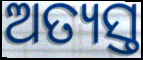
ଅତ୍ୟସ୍ତ